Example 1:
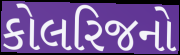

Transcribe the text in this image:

કોલરિજનો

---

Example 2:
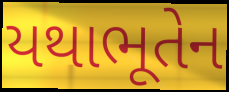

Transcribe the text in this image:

યથાભૂતેન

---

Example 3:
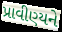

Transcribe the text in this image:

પ્રાવીણ્યને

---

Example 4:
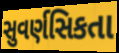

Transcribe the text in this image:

સુવર્ણસિકતા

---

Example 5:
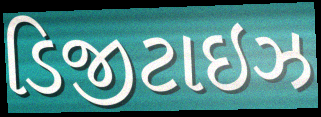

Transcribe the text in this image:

ડિજીટાઇઝ